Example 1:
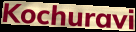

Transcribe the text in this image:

Kochuravi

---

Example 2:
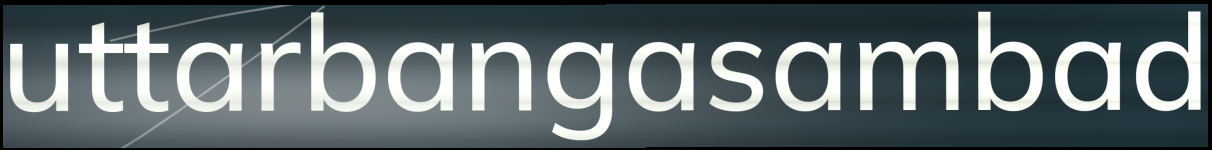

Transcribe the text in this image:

uttarbangasambad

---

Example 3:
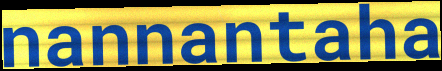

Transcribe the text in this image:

nannantaha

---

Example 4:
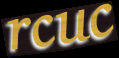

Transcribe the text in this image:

rcuc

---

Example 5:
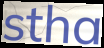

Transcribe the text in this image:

stha